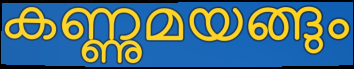
കണ്ണുമയങ്ങും